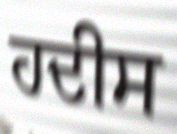
ਹਦੀਸ